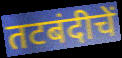
तटबंदीचें